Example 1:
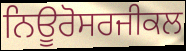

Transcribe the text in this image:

ਨਿਊਰੋਸਰਜੀਕਲ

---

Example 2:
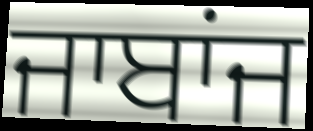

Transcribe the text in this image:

ਜਾਬਾਂਜ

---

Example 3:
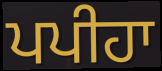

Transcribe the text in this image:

ਪਪੀਹਾ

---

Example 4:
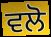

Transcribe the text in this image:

ਵਲੋ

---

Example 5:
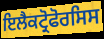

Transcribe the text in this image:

ਇਲੈਕਟ੍ਰੋਫੋਰਸਿਸ